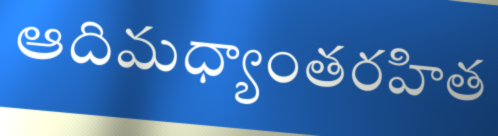
ఆదిమధ్యాంతరహిత